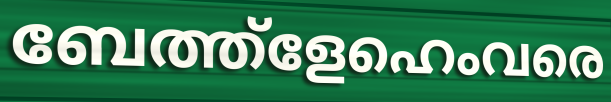
ബേത്ത്ളേഹെംവരെ